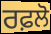
ਰਫ਼ਲੋ